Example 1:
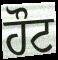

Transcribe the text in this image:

ਹੌਟ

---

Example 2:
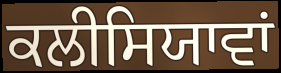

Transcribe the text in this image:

ਕਲੀਸਿਯਾਵਾਂ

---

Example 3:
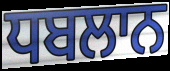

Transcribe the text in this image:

ਧਬਲਾਨ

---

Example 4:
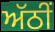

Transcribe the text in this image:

ਅੱਠੀਂ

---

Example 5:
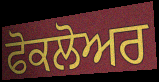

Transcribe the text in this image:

ਫੋਕਲੋਅਰ